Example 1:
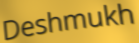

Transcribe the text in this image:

Deshmukh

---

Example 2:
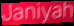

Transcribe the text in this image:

Janiyah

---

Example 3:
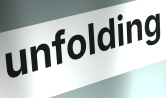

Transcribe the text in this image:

unfolding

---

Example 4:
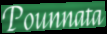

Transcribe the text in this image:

Pounnata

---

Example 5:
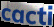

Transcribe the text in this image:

cacti